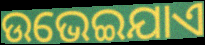
ଉଭେଇଯାଏ